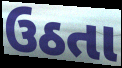
ઉઠતા